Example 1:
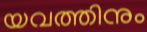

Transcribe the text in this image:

യവത്തിനും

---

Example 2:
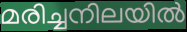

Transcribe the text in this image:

മരിച്ചനിലയിൽ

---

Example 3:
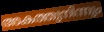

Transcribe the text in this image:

അകത്തുനിന്നും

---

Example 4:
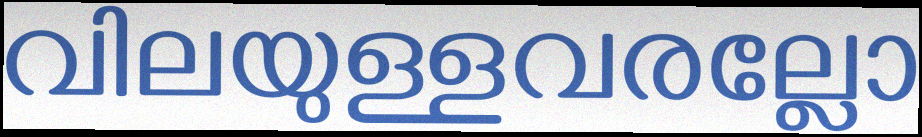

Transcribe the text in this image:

വിലയുള്ളവരല്ലോ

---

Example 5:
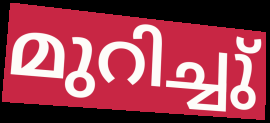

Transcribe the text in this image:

മുറിച്ചു്